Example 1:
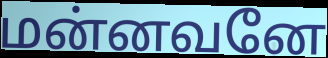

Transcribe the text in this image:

மன்னவனே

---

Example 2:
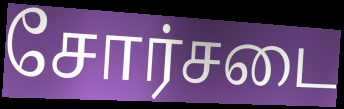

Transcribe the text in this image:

சோர்சடை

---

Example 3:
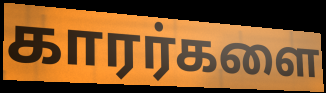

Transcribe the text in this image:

காரர்களை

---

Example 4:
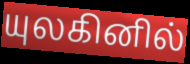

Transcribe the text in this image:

யுலகினில்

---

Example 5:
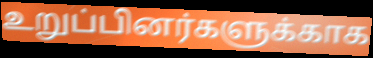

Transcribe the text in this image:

உறுப்பினர்களுக்காக